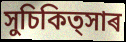
সুচিকিত্সাৰ